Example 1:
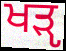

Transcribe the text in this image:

ਖੜੵ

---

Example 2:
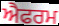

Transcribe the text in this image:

ਐਫਰਮ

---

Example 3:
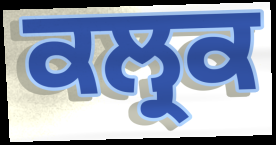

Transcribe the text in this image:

ਕਲ੍ਰਕ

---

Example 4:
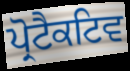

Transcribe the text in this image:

ਪ੍ਰੋਟੈਕਟਿਵ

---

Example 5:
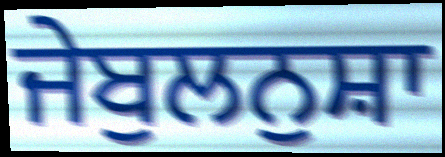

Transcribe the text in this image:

ਜੇਬੁਲਨੁਸ਼ਾ